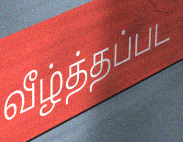
வீழ்த்தப்பட